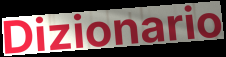
Dizionario